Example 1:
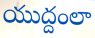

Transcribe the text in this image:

యుద్దంలా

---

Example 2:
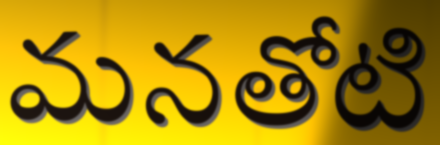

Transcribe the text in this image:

మనతోటి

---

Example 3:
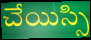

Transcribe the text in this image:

చేయిస్సి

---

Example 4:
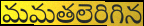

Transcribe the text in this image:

మమతలెరిగిన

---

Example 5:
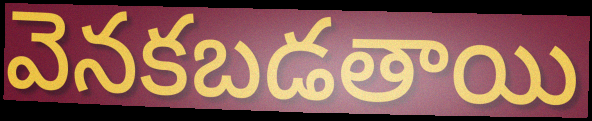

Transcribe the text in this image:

వెనకబడతాయి